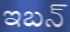
ఇబన్